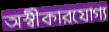
অস্বীকারযোগ্য